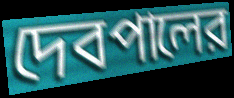
দেবপালের